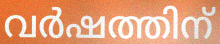
വർഷത്തിന്